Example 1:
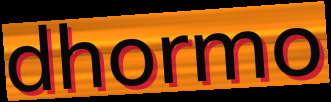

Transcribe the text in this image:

dhormo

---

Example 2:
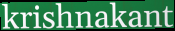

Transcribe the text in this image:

krishnakant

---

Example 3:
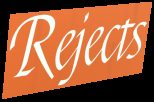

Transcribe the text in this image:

Rejects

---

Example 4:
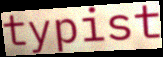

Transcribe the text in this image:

typist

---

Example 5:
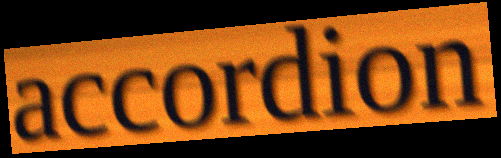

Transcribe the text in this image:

accordion